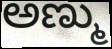
ಅಣ್ಮು